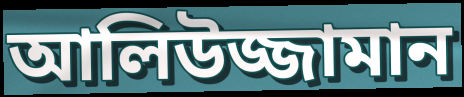
আলিউজ্জামান